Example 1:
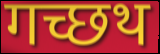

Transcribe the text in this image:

गच्छथ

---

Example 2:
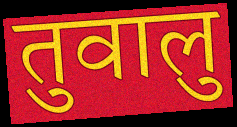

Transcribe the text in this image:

तुवालु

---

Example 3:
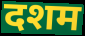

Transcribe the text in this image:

दशम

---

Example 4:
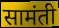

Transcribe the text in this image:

सामंती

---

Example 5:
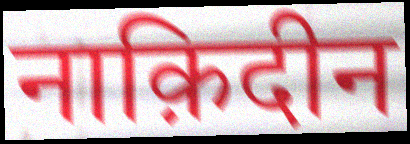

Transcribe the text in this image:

नाक़िदीन